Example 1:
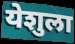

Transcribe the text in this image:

येशुला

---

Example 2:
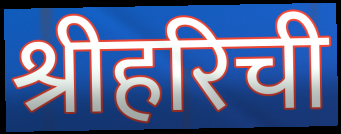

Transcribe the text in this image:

श्रीहरिची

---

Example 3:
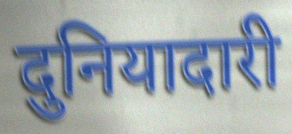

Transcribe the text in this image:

दुनियादारी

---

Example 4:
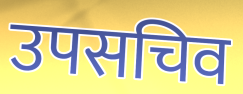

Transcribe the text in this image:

उपसचिव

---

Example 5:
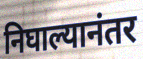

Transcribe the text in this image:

निघाल्यानंतर